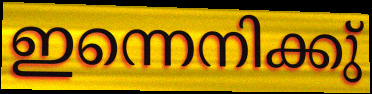
ഇന്നെനിക്കു്